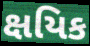
ક્ષયિક